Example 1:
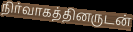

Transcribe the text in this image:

நிர்வாகத்தினருடன்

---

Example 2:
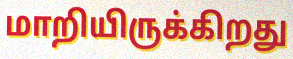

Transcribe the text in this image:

மாறியிருக்கிறது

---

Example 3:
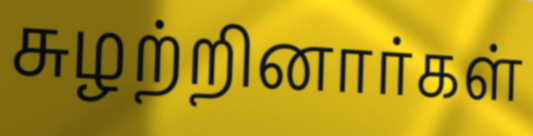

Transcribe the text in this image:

சுழற்றினார்கள்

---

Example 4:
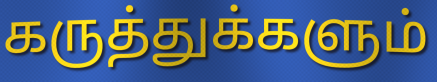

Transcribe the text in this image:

கருத்துக்களும்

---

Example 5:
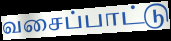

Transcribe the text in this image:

வசைப்பாட்டு